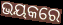
ଭୟକରେ